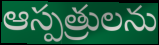
ఆస్పత్రులను